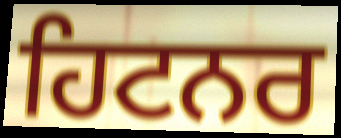
ਹਿਟਨਰ